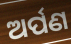
ଅର୍ପଣ